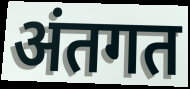
अंतगत